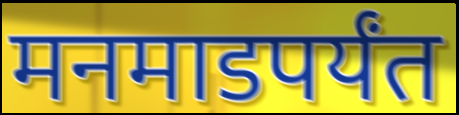
मनमाडपर्यंत